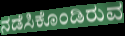
ನಡೆಸಿಕೊಂಡಿರುವ